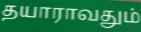
தயாராவதும்